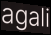
agali